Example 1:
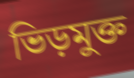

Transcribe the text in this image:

ভিড়মুক্ত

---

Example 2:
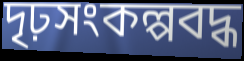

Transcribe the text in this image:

দৃঢ়সংকল্পবদ্ধ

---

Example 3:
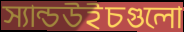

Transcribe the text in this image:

স্যান্ডউইচগুলো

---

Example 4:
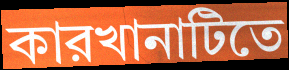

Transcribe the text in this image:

কারখানাটিতে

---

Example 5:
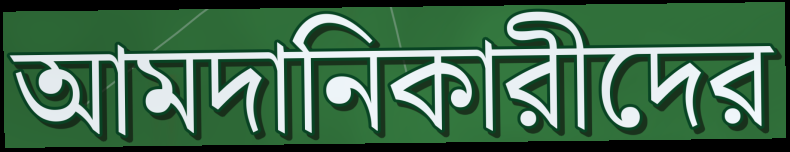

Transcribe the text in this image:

আমদানিকারীদের